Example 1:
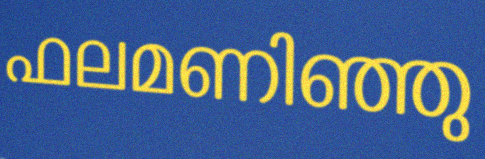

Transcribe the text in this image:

ഫലമണിഞ്ഞു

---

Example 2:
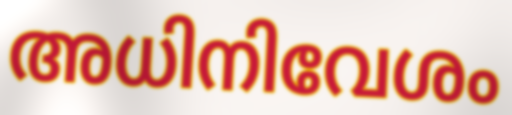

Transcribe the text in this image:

അധിനിവേശം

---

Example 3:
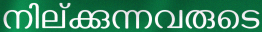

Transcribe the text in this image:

നില്ക്കുന്നവരുടെ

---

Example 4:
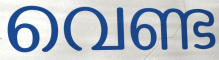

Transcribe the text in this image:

വെണ്ട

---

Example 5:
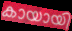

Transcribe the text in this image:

കായായി